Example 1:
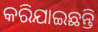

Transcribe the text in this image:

କରିଯାଇଛନ୍ତି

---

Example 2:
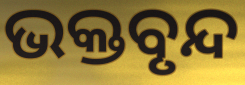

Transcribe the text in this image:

ଭକ୍ତବୃନ୍ଦ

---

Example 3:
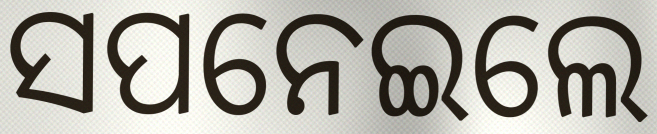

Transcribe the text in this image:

ସପନେଇଲେ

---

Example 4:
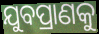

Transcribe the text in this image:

ଯୁବପ୍ରାଣକୁ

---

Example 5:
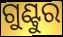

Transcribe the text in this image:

ଗୁଣ୍ଟୁର